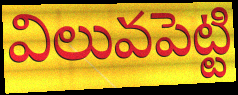
విలువపెట్టి